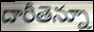
దారీతెన్నూ